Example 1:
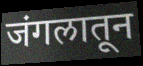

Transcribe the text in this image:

जंगलातून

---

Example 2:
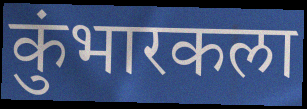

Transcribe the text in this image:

कुंभारकला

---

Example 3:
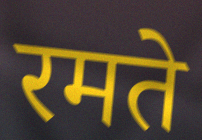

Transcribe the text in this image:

रमते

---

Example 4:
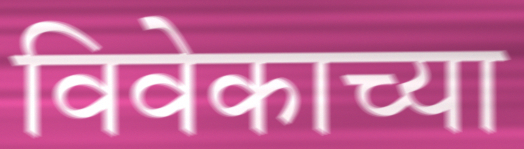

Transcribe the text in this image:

विवेकाच्या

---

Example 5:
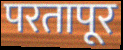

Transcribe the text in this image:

परतापूर